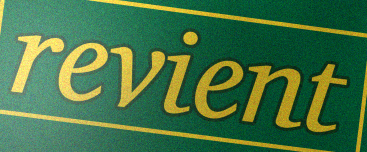
revient